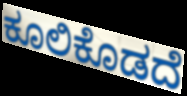
ಕೂಲಿಕೊಡದೆ